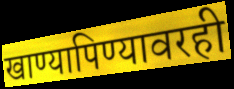
खाण्यापिण्यावरही